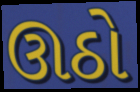
ઊઠો